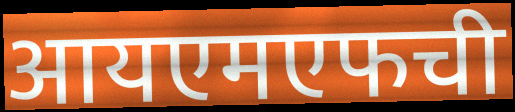
आयएमएफची